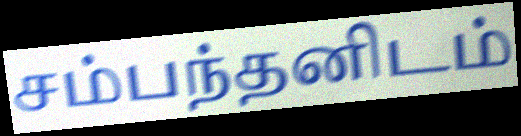
சம்பந்தனிடம்